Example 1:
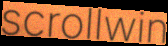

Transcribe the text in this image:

scrollwin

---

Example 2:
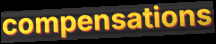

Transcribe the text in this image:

compensations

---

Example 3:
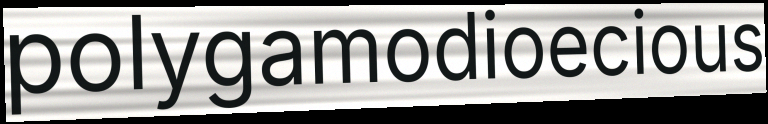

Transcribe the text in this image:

polygamodioecious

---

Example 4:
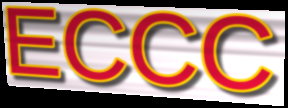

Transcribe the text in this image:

ECCC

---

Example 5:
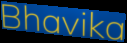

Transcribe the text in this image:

Bhavika